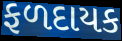
ફળદાયક